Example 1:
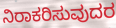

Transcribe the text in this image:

ನಿರಾಕರಿಸುವುದರ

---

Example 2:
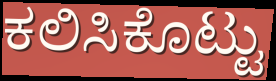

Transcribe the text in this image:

ಕಲಿಸಿಕೊಟ್ಟು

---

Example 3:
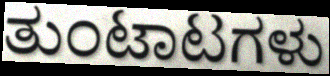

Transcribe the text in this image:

ತುಂಟಾಟಗಳು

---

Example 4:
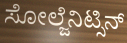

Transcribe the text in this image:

ಸೋಲ್ಜೆನಿಟ್ಸಿನ್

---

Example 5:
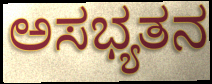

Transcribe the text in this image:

ಅಸಭ್ಯತನ